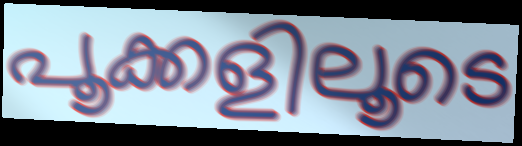
പൂക്കളിലൂടെ